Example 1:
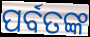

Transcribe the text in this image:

ପର୍ବତଙ୍କ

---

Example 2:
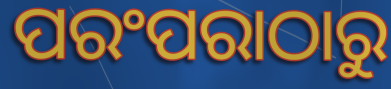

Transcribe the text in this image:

ପରଂପରାଠାରୁ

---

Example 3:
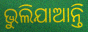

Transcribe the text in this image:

ଭୁଲିଯାଆନ୍ତି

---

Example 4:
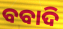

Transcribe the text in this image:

ବବାଦି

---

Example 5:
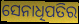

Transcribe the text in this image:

ସେନାଧିପତିର